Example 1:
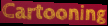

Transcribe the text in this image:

Cartooning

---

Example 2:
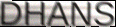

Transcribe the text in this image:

DHANS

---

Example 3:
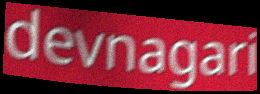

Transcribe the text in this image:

devnagari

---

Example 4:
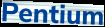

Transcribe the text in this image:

Pentium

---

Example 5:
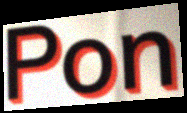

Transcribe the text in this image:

Pon